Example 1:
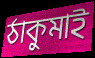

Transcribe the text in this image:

ঠাকুমাই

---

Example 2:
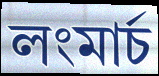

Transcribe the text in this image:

লংমার্চ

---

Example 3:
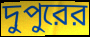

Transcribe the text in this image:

দুপুরের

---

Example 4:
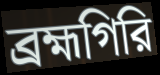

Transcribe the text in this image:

ব্রহ্মগিরি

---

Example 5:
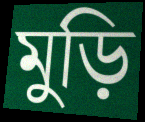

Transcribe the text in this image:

মুড়ি